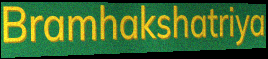
Bramhakshatriya